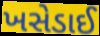
ખસેડાઈ